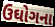
ઉઘોગના